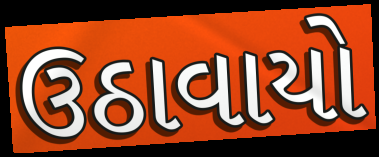
ઉઠાવાયો